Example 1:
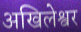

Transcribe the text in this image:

अखिलेश्वर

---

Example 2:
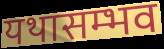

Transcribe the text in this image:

यथासम्भव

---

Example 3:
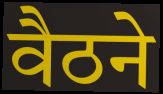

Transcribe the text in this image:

वैठने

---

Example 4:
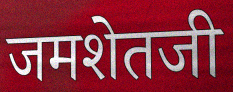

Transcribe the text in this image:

जमशेतजी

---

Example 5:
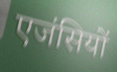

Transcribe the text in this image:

एजंसियों